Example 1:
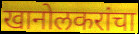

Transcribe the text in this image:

खानोलकरांचा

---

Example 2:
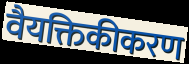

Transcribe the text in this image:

वैयक्तिकीकरण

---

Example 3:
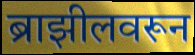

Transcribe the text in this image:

ब्राझीलवरून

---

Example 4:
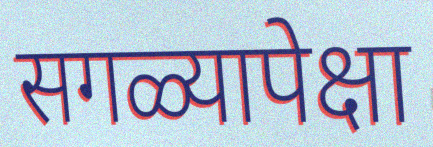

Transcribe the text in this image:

सगळ्यापेक्षा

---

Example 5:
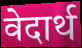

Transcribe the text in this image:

वेदार्थ